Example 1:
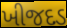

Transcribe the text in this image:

ખીજદડ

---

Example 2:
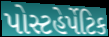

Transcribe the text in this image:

પોસ્ટહેર્પેટિક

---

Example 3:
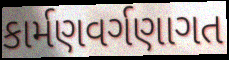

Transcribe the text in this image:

કાર્મણવર્ગણાગત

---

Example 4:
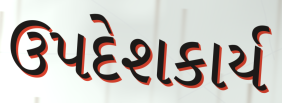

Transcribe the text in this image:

ઉપદેશકાર્ય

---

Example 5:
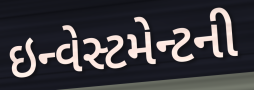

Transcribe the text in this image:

ઇન્વેસ્ટમેન્ટની